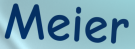
Meier